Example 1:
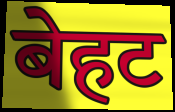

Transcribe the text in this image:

बेहट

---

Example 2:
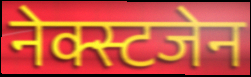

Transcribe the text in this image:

नेक्स्टजेन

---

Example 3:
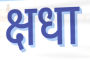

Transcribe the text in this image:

क्षधा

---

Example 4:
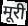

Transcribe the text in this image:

मूरी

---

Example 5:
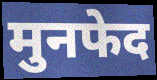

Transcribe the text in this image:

मुनफेद